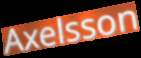
Axelsson